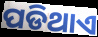
ପଡିଥାଏ